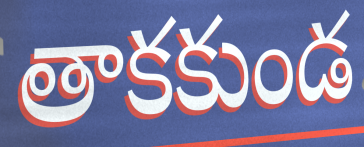
తాకకుండ